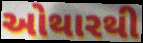
ઓથારથી